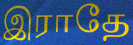
இராதே